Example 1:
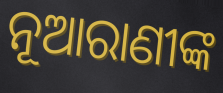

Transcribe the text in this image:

ନୂଆରାଣୀଙ୍କ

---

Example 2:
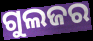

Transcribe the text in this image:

ଗୁଲଜର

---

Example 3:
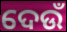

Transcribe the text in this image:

ଦେଉଁ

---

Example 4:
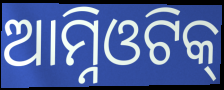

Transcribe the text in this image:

ଆମ୍ନିଓଟିକ୍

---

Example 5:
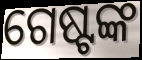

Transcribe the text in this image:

ଗେଷ୍ଟଙ୍କ